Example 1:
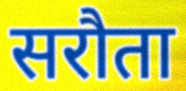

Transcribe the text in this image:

सरौता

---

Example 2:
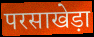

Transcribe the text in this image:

परसाखेड़ा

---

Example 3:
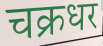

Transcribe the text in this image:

चक्रधर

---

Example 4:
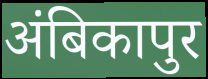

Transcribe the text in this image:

अंबिकापुर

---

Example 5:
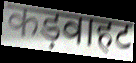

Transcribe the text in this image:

कड़वाहट